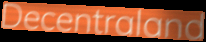
Decentraland